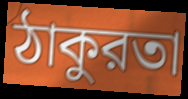
ঠাকুরতা